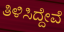
ತಿಳಿಸಿದ್ದೇವೆ